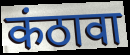
कंठावा